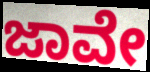
ಜಾವೇ